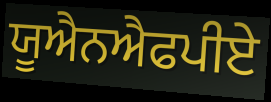
ਯੂਐਨਐਫਪੀਏ